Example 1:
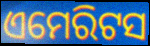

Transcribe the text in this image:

ଏମେରିଟସ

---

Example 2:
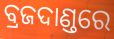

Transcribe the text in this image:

ବ୍ରଜଦାଣ୍ଡରେ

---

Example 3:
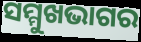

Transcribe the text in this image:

ସମ୍ମୁଖଭାଗର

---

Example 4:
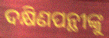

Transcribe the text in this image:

ଦକ୍ଷିଣପନ୍ଥୀଙ୍କୁ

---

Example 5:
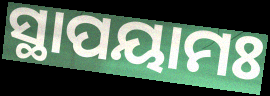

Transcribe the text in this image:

ସ୍ଥାପୟାମଃ